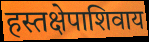
हस्तक्षेपाशिवाय